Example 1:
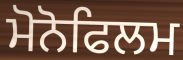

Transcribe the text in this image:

ਮੋਨੋਫਿਲਮ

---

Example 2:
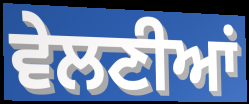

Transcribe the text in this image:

ਵੇਲਣੀਆਂ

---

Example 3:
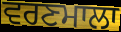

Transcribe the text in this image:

ਵਰਣਮਾਲਾ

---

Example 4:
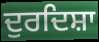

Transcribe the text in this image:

ਦੁਰਦਿਸ਼ਾ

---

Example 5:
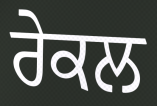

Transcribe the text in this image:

ਰੇਕਲ